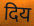
दिय